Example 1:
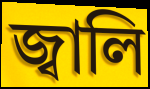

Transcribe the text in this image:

জ্বালি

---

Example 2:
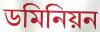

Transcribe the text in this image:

ডমিনিয়ন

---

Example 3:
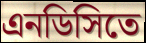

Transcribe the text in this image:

এনডিসিতে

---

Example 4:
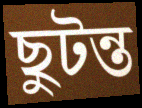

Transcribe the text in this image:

ছুটন্ত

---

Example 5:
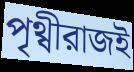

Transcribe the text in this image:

পৃথ্বীরাজই